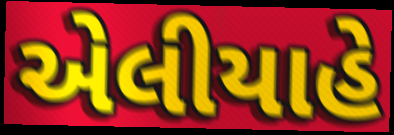
એલીયાહે